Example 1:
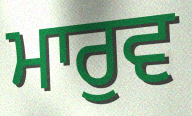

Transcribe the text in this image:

ਮਾਰੁਵ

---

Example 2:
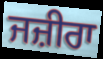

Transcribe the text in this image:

ਜਜ਼ੀਰਾ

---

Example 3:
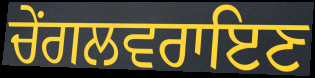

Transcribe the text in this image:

ਚੇਂਗਲਵਰਾਇਣ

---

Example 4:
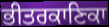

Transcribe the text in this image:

ਭੀਤਰਕਾਣਿਕਾ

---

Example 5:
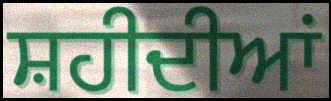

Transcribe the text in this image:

ਸ਼ਹੀਦੀਆਂ